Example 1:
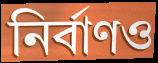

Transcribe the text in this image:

নির্বাণও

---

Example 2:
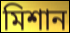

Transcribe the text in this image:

মিশান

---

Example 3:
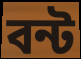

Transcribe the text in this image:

বন্ট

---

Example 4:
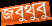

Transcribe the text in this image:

জবুথুবু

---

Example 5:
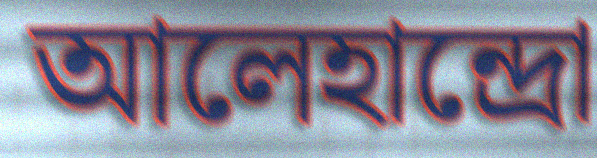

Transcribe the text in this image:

আলেহান্দ্রো